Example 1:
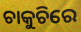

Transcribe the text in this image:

ଚାକୁଚିରେ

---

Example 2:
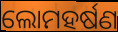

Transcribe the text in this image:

ଲୋମହର୍ଷଣ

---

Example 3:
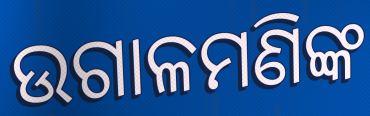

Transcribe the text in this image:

ଉଗାଳମଣିଙ୍କ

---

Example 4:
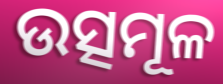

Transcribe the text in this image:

ଉତ୍ସମୂଳ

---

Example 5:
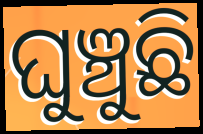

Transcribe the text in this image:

ଘୁଞ୍ଚୁଛି